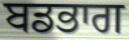
ਬਡਭਾਗ